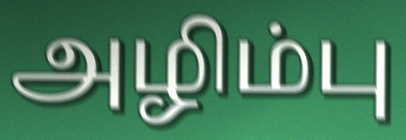
அழிம்பு